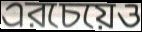
এরচেয়েও